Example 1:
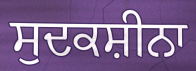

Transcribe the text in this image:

ਸੁਦਕਸ਼ੀਨਾ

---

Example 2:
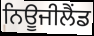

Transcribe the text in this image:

ਨਿਊਜੀਲੈਂਡ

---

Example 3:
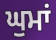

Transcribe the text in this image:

ਘੁਮਾਂ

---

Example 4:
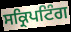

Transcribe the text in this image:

ਸਕ੍ਰਿਪਟਿੰਗ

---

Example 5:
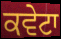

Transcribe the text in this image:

ਕਵੇਟਾ